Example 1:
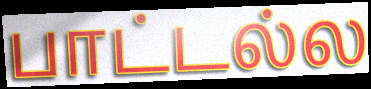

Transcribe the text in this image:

பாட்டல்ல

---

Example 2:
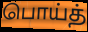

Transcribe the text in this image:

பொய்த்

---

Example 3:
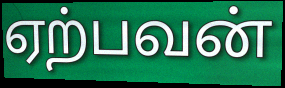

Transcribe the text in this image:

ஏற்பவன்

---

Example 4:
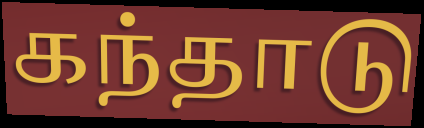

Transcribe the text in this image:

கந்தாடு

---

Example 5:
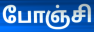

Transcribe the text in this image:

போஞ்சி